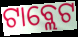
ଟାବ୍ଲେଟ